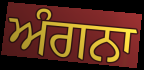
ਅੰਗਨਾ